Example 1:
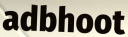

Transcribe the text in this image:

adbhoot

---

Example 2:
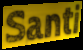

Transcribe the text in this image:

Santi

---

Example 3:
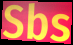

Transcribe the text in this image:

Sbs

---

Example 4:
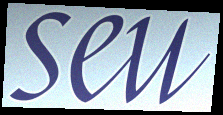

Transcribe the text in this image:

seu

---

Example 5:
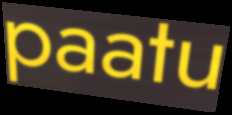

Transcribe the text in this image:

paatu